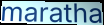
maratha